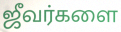
ஜீவர்களை